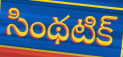
సింథటిక్